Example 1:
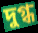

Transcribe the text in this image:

দুগ্ধ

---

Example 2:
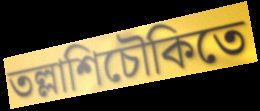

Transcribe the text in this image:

তল্লাশিচৌকিতে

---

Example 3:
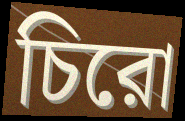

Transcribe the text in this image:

চিরো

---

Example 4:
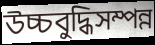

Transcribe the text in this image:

উচ্চবুদ্ধিসম্পন্ন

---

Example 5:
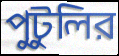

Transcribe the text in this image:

পুটুলির